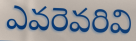
ఎవరెవరివి